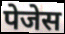
पेजेस